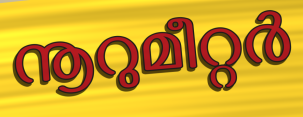
നൂറുമീറ്റർ